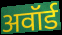
अवॉर्ड